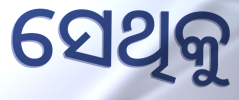
ସେଥିକୁ